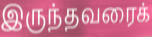
இருந்தவரைக்